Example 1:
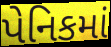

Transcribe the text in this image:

પેનિકમાં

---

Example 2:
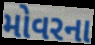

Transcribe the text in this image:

મોવરના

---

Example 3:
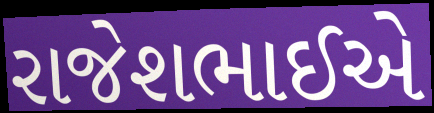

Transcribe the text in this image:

રાજેશભાઈએ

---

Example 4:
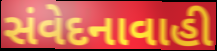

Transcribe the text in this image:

સંવેદનાવાહી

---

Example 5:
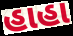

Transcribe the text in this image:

હાહા